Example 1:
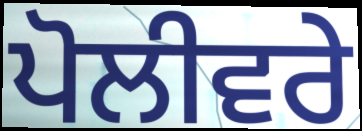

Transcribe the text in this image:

ਪੋਲੀਵਰੇ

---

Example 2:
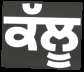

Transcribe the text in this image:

ਕੱਲੂ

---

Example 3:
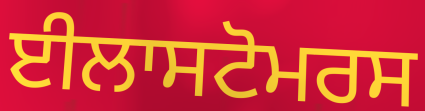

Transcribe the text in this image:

ਈਲਾਸਟੋਮਰਸ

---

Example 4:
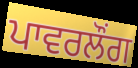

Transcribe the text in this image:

ਪਾਵਰਲੌਂਗ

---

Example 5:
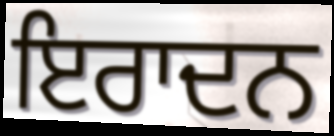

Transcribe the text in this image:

ਇਰਾਦਨ